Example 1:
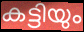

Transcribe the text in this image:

കട്ടിയും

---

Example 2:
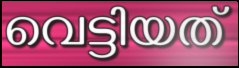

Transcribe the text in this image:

വെട്ടിയത്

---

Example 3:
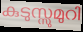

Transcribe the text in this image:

കുടുസ്സുമുറി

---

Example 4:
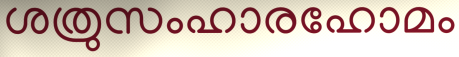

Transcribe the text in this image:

ശത്രുസംഹാരഹോമം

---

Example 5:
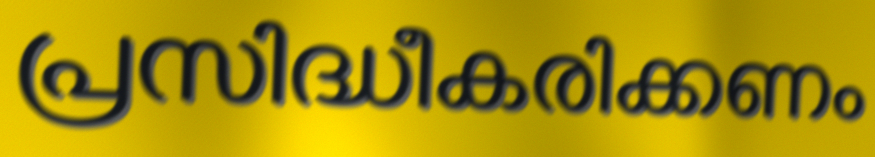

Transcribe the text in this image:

പ്രസിദ്ധീകരിക്കണം